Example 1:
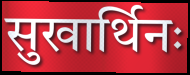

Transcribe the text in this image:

सुखार्थिनः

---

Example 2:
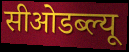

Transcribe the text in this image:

सीओडब्ल्यू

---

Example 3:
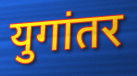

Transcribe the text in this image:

युगांतर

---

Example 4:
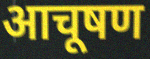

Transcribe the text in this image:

आचूषण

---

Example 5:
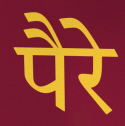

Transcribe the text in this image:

पैरे